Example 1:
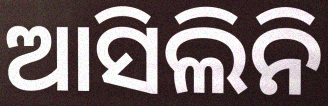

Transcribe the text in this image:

ଆସିଲିନି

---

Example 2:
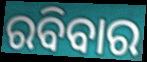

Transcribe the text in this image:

ରବିବାର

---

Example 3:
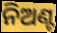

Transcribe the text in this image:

ନିଅଣ୍ଟ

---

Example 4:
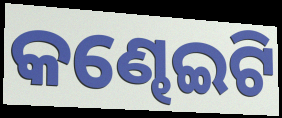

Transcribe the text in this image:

କଣ୍ଢେଇଟି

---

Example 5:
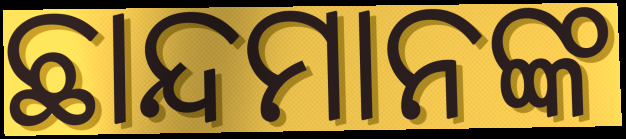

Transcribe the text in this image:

ଛାନ୍ଦମାନଙ୍କ